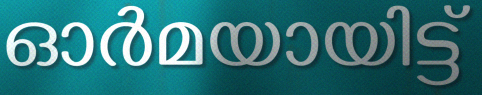
ഓർമയായിട്ട്